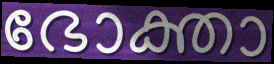
ഭോക്താ